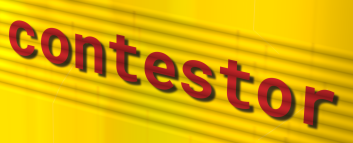
contestor